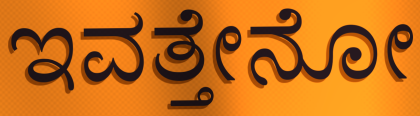
ಇವತ್ತೇನೋ